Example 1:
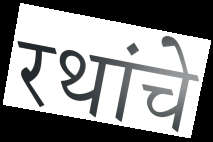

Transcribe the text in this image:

रथांचे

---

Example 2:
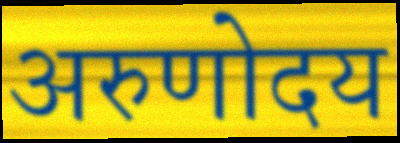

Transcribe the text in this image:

अरुणोदय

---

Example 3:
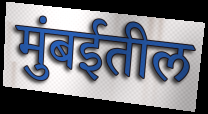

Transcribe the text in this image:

मुंबईतील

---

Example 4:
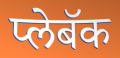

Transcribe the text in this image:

प्लेबॅक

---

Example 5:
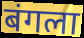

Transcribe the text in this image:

बंगला